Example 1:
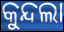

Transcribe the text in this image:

କୁନ୍ଦଲା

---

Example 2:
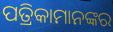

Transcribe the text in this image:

ପତ୍ରିକାମାନଙ୍କର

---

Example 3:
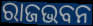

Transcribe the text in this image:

ରାଜଭବନ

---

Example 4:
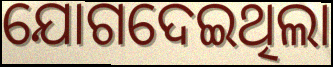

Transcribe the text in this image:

ଯୋଗଦେଇଥିଲା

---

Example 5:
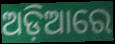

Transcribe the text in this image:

ଅଡ଼ିଆରେ